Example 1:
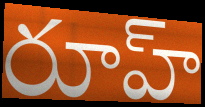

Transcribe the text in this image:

రూహ్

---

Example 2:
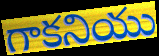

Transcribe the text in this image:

గాకనియు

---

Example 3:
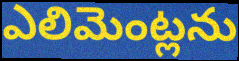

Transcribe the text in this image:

ఎలిమెంట్లను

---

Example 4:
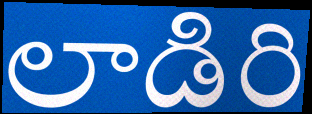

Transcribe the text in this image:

లాడిరి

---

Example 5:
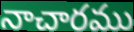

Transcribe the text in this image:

నాచారము